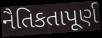
નૈતિકતાપૂર્ણ